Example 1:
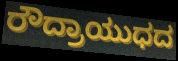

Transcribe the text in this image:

ರೌದ್ರಾಯುಧದ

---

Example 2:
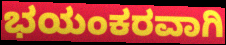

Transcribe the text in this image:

ಭಯಂಕರವಾಗಿ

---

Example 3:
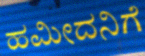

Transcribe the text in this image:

ಹಮೀದನಿಗೆ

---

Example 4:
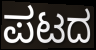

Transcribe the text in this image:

ಪಟದ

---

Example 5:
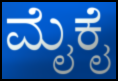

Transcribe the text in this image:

ಮೈಕೈ